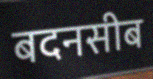
बदनसीब